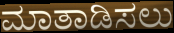
ಮಾತಾಡಿಸಲು